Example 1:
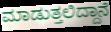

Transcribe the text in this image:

ಮಾಡುತ್ತಲಿದ್ದಾನೆ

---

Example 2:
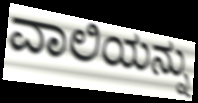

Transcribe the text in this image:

ವಾಲಿಯನ್ನು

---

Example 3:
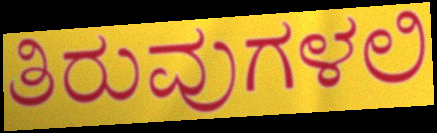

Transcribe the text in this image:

ತಿರುವುಗಳಲಿ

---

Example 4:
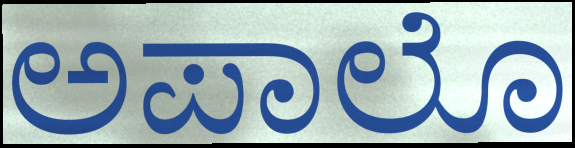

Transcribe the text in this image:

ಅಪಾಲೊ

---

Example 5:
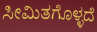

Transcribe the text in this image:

ಸೀಮಿತಗೊಳ್ಳದೆ